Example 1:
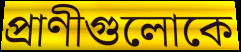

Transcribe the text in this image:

প্রাণীগুলোকে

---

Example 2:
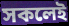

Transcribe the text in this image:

সকলেই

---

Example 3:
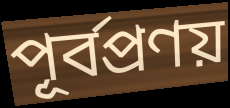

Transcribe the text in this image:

পূর্বপ্রণয়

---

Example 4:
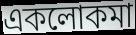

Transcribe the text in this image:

একলোকমা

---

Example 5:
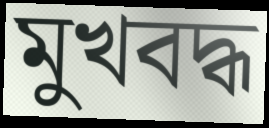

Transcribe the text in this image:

মুখবদ্ধ